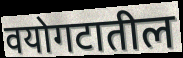
वयोगटातील